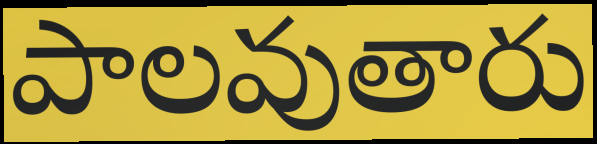
పాలవుతారు